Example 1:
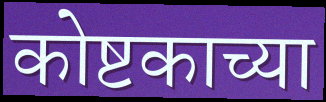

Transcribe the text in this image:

कोष्टकाच्या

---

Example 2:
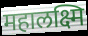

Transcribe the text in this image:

महालक्ष्मि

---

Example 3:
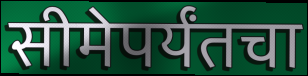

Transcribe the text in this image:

सीमेपर्यंतचा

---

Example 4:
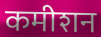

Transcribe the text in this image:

कमीशन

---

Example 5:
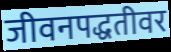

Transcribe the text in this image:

जीवनपद्धतीवर